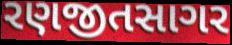
રણજીતસાગર